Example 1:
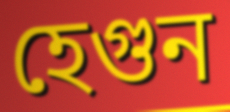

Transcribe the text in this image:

হেগুন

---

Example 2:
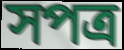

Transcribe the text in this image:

সপত্র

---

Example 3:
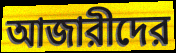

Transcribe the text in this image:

আজারীদের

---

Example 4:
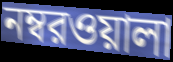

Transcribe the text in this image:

নম্বরওয়ালা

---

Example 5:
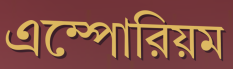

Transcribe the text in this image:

এম্পোরিয়ম